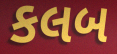
કલબ